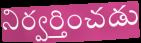
నిర్వర్తించడు